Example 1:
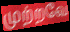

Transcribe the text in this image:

முற்றவே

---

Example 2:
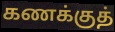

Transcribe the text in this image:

கணக்குத்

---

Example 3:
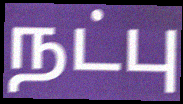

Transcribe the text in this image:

நட்பு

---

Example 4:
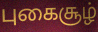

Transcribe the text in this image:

புகைசூழ்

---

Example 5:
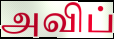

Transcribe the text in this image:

அவிப்